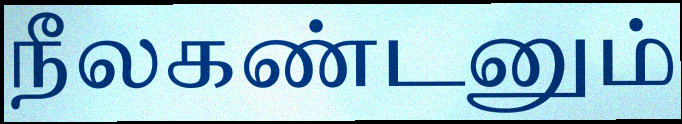
நீலகண்டனும்